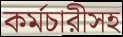
কর্মচারীসহ